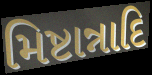
મિષ્ટાન્નાદિ